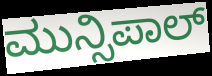
ಮುನ್ಸಿಪಾಲ್